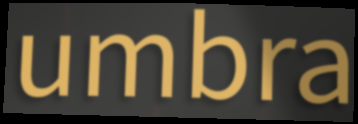
umbra